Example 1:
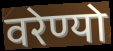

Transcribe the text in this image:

वरेण्यो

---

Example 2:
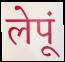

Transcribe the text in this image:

लेपूं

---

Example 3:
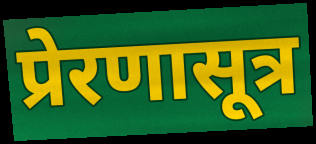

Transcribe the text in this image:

प्रेरणासूत्र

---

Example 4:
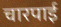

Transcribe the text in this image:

चारपाई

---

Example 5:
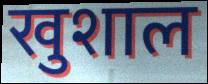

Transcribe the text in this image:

खुशाल